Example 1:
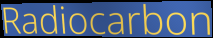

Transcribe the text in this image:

Radiocarbon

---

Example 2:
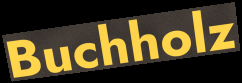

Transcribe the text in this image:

Buchholz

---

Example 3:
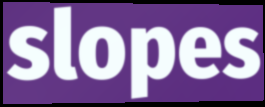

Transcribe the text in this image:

slopes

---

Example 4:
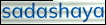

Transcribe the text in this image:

sadashaya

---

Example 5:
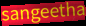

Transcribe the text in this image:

sangeetha